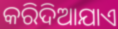
କରିଦିଆଯାଏ